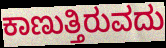
ಕಾಣುತ್ತಿರುವದು